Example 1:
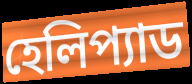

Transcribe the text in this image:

হেলিপ্যাড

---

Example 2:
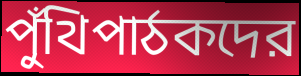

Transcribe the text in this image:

পুঁথিপাঠকদের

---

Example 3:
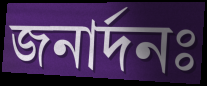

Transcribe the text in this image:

জনার্দনঃ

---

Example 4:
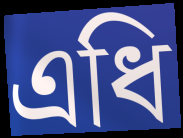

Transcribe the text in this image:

এধি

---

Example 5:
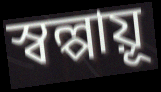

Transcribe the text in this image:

স্বল্পায়ূ